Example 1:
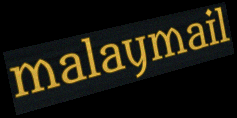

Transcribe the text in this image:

malaymail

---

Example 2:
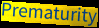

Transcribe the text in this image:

Prematurity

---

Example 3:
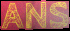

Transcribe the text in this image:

ANS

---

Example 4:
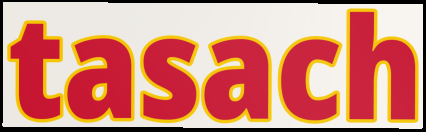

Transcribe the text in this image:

tasach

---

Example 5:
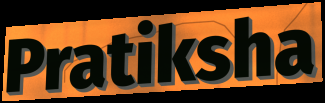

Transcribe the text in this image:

Pratiksha